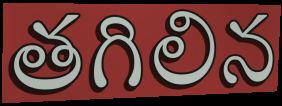
తగిలిన